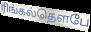
ரிங்கல்தௌபே